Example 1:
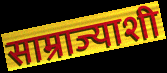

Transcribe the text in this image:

साम्राज्याशी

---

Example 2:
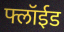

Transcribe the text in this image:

फ्लॉईड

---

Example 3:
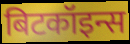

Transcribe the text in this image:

बिटकॉइन्स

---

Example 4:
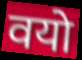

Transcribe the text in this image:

वयो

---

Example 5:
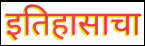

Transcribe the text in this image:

इतिहासाचा